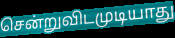
சென்றுவிடமுடியாது